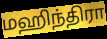
மஹிந்திரா